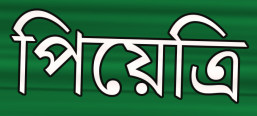
পিয়েত্রি